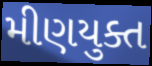
મીણયુક્ત